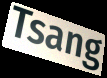
Tsang